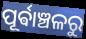
ପୂର୍ଵାଞ୍ଚଳରୁ